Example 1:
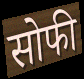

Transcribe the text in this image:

सोफी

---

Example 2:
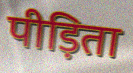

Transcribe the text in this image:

पीड़िता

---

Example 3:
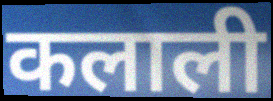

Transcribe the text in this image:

कलाली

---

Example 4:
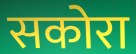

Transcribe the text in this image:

सकोरा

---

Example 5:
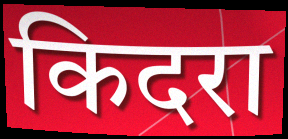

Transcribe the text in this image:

किदरा